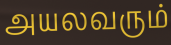
அயலவரும்